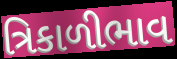
ત્રિકાળીભાવ